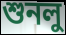
শুনলু